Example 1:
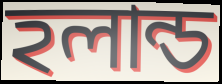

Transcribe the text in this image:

হলান্ড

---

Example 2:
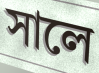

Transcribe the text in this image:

সালে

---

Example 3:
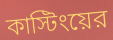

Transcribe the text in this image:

কাস্টিংয়ের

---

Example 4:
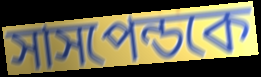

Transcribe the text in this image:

সাসপেন্ডকে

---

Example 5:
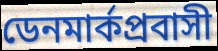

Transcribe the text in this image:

ডেনমার্কপ্রবাসী